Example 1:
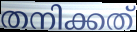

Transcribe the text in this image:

തനിക്കത്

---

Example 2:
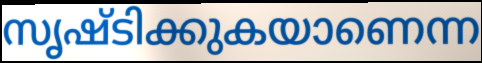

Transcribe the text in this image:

സൃഷ്ടിക്കുകയാണെന്ന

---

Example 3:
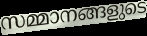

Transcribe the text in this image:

സമ്മാനങ്ങളുടെ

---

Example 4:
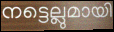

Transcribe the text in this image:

നട്ടെല്ലുമായി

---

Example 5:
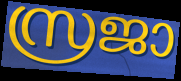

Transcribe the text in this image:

സ്രജാ